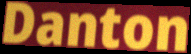
Danton